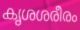
കൃശശരീരം